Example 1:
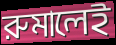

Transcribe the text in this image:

রুমালেই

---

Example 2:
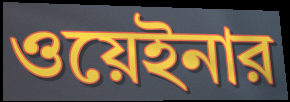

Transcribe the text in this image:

ওয়েইনার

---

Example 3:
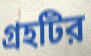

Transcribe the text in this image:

গ্রহটির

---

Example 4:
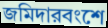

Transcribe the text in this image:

জমিদারবংশে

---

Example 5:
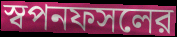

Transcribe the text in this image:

স্বপনফসলের